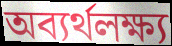
অব্যর্থলক্ষ্য